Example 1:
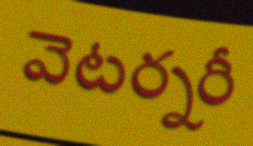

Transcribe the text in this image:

వెటర్నరీ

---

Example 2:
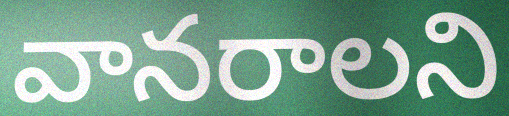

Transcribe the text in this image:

వానరాలని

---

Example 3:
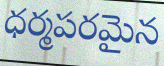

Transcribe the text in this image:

ధర్మపరమైన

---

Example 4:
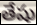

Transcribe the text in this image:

తేషు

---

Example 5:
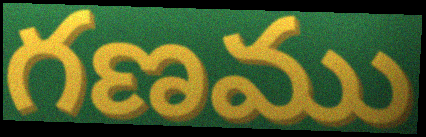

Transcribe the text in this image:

గణము